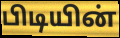
பிடியின்